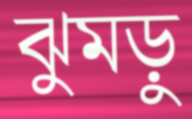
ঝুমড়ু